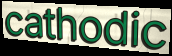
cathodic